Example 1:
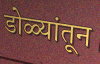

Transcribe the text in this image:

डोळ्यांतून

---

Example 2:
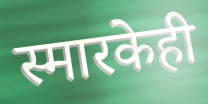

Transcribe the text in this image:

स्मारकेही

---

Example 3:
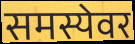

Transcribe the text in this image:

समस्येवर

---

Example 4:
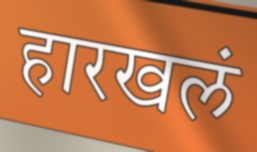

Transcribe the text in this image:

हारखलं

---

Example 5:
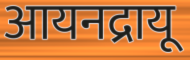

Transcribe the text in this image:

आयनद्रायू